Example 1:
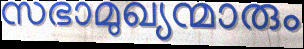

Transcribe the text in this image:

സഭാമുഖ്യന്മാരും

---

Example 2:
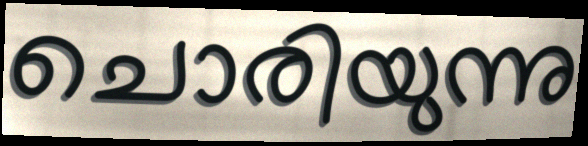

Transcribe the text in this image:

ചൊരിയുന്നു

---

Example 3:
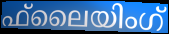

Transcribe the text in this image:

ഫ്‌ലൈയിംഗ്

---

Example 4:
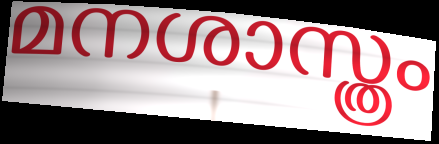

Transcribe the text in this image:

മനശാസ്ത്രം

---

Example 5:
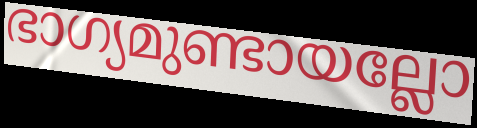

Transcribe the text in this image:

ഭാഗ്യമുണ്ടായല്ലോ